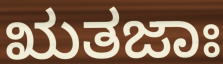
ಋತಜಾಃ